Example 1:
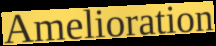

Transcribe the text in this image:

Amelioration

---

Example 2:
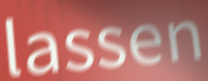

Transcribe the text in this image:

lassen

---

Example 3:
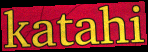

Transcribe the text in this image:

katahi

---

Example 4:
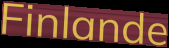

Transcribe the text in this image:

Finlande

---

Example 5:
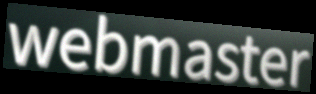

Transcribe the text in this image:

webmaster